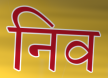
निव